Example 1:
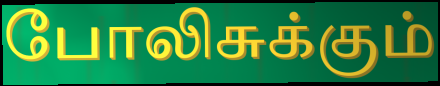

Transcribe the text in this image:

போலிசுக்கும்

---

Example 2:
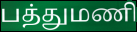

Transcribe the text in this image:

பத்துமணி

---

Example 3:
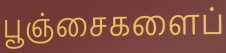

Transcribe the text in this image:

பூஞ்சைகளைப்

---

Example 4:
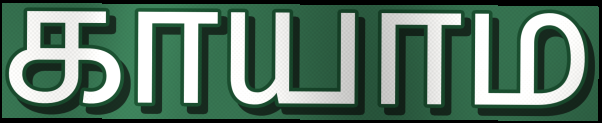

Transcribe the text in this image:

காயாம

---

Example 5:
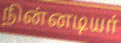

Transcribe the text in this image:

நின்னடியர்